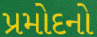
પ્રમોદનો